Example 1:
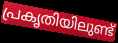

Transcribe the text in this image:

പ്രകൃതിയിലുണ്ട്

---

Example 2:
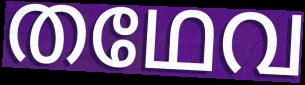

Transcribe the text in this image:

തഥേവ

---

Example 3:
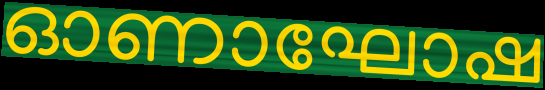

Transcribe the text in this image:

ഓണാഘോഷ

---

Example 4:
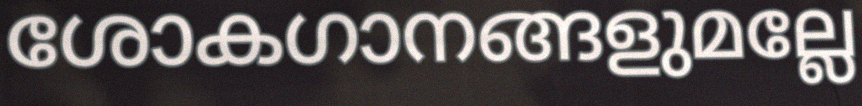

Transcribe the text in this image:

ശോകഗാനങ്ങളുമല്ലേ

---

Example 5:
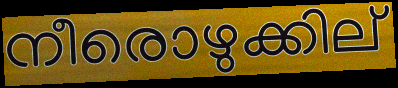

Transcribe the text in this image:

നീരൊഴുക്കില്